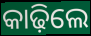
କାଢ଼ିଲେ